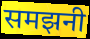
समझनी